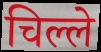
चिल्ले